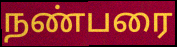
நண்பரை